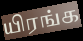
யிரங்க